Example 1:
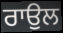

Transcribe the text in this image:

ਰਾਉਲ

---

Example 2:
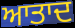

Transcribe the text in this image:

ਆਤਾਦ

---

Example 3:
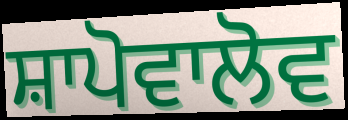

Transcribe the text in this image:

ਸ਼ਾਪੋਵਾਲੋਵ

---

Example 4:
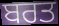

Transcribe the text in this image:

ਬਰਤ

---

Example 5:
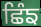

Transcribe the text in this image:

ਛਿੰਙ